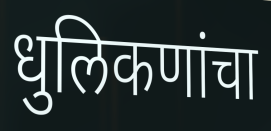
धुलिकणांचा